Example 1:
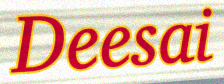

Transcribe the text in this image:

Deesai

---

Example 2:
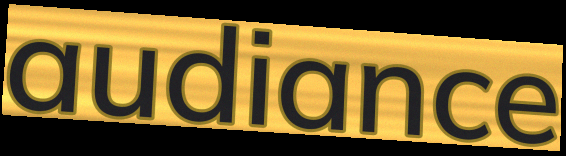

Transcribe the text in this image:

audiance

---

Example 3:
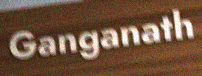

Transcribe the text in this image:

Ganganath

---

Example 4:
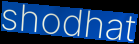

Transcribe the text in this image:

shodhat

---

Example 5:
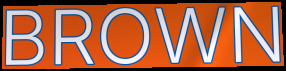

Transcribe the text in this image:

BROWN